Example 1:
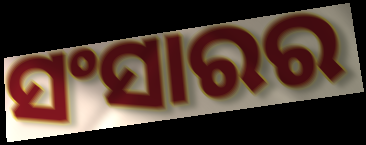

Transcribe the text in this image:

ସଂସାରର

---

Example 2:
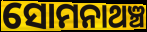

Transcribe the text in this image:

ସୋମନାଥଞ୍ଚ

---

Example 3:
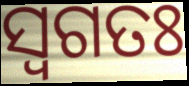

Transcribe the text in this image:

ସ୍ଵଗତଃ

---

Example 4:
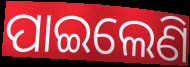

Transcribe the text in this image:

ପାଇଲେଣି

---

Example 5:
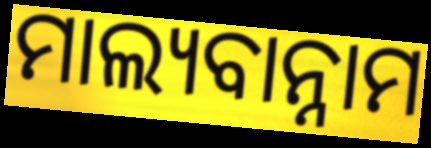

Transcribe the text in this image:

ମାଲ୍ୟବାନ୍ନାମ